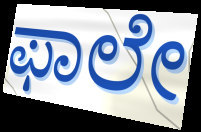
ಫಾಲೇ